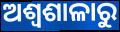
ଅଶ୍ୱଶାଳାରୁ